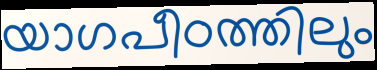
യാഗപീഠത്തിലും